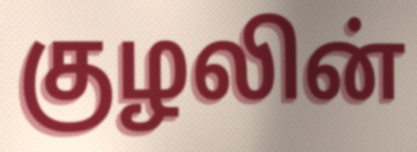
குழலின்